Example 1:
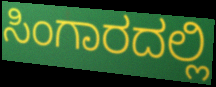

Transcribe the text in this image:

ಸಿಂಗಾರದಲ್ಲಿ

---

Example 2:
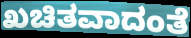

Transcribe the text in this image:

ಖಚಿತವಾದಂತೆ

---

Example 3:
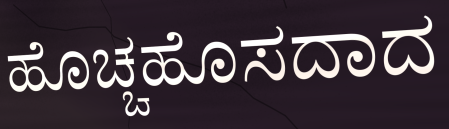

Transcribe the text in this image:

ಹೊಚ್ಚಹೊಸದಾದ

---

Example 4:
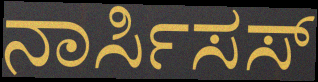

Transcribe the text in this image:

ನಾರ್ಸಿಸಸ್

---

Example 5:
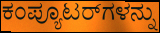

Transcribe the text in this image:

ಕಂಪ್ಯೂಟರ್‌ಗಳನ್ನು